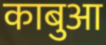
काबुआ